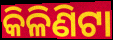
କିଳିଣିଟା